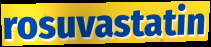
rosuvastatin